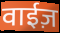
वाईज़